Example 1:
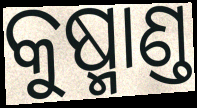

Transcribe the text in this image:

କୁଷ୍ମାଣ୍ଡ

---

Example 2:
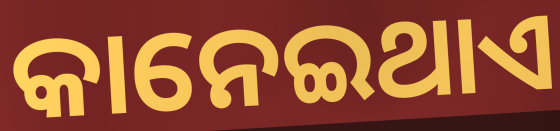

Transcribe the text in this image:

କାନେଇଥାଏ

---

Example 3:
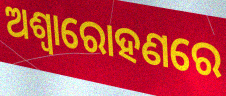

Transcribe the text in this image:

ଅଶ୍ଵାରୋହଣରେ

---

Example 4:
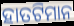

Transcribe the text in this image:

ହାତଟିମାନ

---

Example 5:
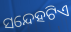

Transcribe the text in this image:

ସନ୍ଦେହଟିଏ